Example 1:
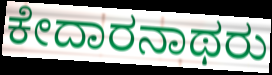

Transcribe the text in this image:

ಕೇದಾರನಾಥರು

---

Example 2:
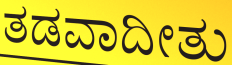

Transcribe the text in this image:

ತಡವಾದೀತು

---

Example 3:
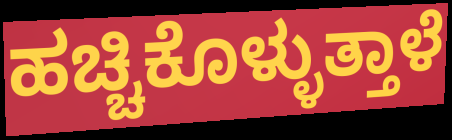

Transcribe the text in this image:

ಹಚ್ಚಿಕೊಳ್ಳುತ್ತಾಳೆ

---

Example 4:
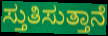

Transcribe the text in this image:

ಸ್ತುತಿಸುತ್ತಾನೆ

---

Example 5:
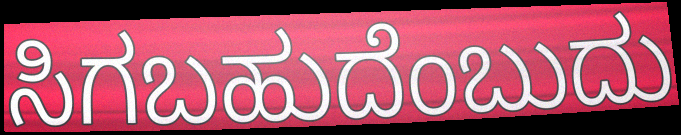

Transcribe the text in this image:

ಸಿಗಬಹುದೆಂಬುದು